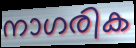
നാഗരിക